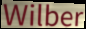
Wilber